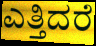
ಎತ್ತಿದರೆ